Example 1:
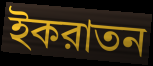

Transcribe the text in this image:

ইকরাতন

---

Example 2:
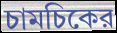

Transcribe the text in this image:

চামচিকের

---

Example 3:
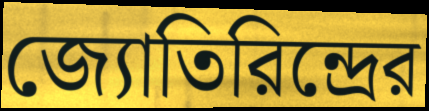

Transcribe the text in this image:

জ্যোতিরিন্দ্রের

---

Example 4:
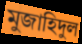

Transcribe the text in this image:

মুজাহিদুল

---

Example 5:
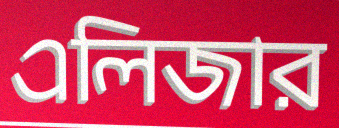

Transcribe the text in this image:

এলিজার